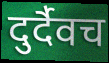
दुर्दैवच